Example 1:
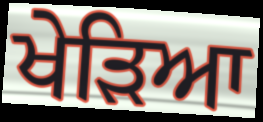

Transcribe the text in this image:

ਖੇੜਿਆ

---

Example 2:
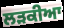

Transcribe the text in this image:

ਲੜਕੀਆ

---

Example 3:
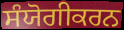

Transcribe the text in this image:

ਸੰਯੋਗੀਕਰਨ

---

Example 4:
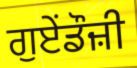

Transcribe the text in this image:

ਗੁਏਂਡੌਜ਼ੀ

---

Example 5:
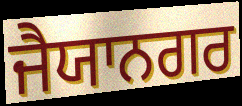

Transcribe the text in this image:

ਜੈਯਾਨਗਰ